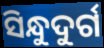
ସିନ୍ଧୁଦୁର୍ଗ